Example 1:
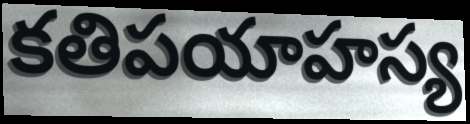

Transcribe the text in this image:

కతిపయాహస్య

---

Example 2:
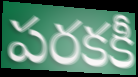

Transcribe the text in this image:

పరకకీ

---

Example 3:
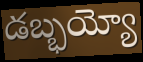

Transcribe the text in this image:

డబ్భయ్యో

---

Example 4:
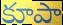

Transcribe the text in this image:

కూపా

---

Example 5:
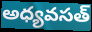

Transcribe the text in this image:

అధ్యవసత్